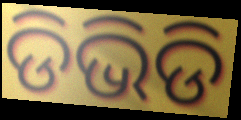
ଡିଭିଡି